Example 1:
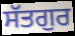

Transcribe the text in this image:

ਸੱਤਗੁਰ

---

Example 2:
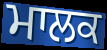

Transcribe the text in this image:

ਮਾਲਕ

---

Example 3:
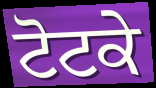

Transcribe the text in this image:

ਟੋਟਕੇ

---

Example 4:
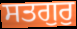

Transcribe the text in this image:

ਸਤਗੁਰੁ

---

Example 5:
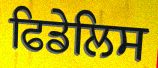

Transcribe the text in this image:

ਫਿਡੇਲਿਸ